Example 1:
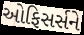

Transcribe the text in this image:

ઓફિસર્સને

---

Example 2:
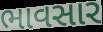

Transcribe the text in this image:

ભાવસાર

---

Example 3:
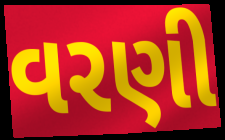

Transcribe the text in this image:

વરણી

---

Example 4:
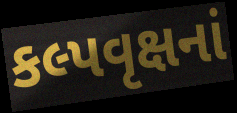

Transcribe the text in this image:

કલ્પવૃક્ષનાં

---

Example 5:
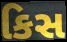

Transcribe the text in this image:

કિસ